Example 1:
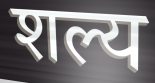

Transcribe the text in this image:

शल्‍य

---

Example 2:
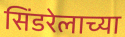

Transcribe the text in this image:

सिंडरेलाच्या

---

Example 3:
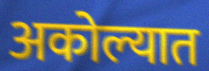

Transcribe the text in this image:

अकोल्यात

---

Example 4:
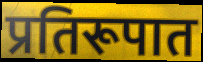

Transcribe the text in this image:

प्रतिरूपात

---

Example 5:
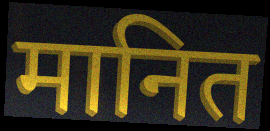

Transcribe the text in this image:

मानित